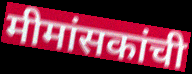
मीमांसकांची